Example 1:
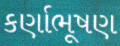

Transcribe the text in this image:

કર્ણાભૂષણ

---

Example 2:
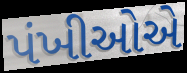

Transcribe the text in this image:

પંખીઓએ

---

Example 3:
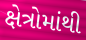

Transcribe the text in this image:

ક્ષેત્રોમાંથી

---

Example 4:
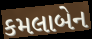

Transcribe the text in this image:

કમલાબેન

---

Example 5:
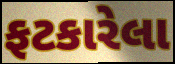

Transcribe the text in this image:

ફટકારેલા